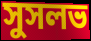
সুসলভ